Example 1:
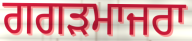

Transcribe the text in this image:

ਗਗੜਮਾਜਰਾ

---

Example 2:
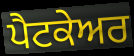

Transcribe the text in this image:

ਪੈਟਕੇਅਰ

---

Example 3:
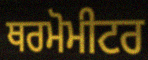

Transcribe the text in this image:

ਥਰਮੋਮੀਟਰ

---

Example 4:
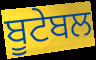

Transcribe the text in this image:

ਬੂਟੇਬਲ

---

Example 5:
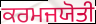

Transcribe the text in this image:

ਕਰਮਜਯੋਤੀ